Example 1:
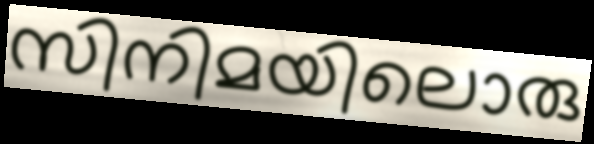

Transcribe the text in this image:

സിനിമയിലൊരു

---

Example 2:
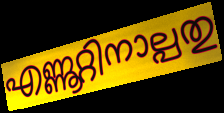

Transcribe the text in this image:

എണ്ണൂറ്റിനാല്പതു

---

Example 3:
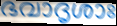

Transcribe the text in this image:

ഭവാദൃശാഃ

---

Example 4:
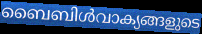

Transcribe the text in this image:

ബൈബിൾവാക്യങ്ങളുടെ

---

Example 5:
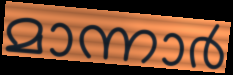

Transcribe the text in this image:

മാന്നാർ